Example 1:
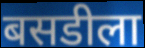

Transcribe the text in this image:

बसडीला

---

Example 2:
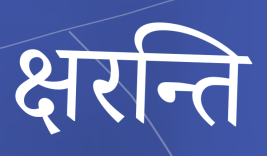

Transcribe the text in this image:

क्षरन्ति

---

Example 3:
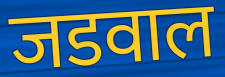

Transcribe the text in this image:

जडवाल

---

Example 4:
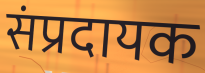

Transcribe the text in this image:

संप्रदायक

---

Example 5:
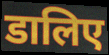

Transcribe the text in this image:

डालिए